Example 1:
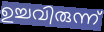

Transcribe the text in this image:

ഉച്ചവിരുന്ന്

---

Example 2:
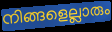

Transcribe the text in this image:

നിങ്ങളെല്ലാരും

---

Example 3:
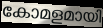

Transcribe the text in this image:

കോമളമായി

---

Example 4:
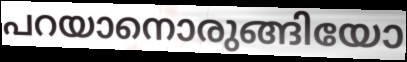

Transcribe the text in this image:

പറയാനൊരുങ്ങിയോ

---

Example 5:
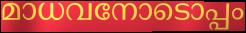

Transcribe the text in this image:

മാധവനോടൊപ്പം